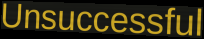
Unsuccessful